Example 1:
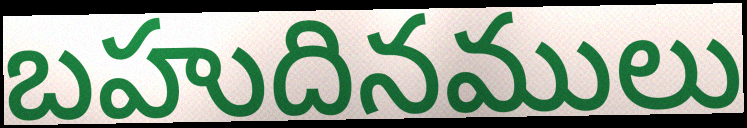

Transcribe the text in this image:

బహుదినములు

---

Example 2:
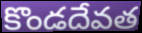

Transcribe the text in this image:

కొండదేవత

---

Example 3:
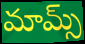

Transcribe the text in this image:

మామ్స్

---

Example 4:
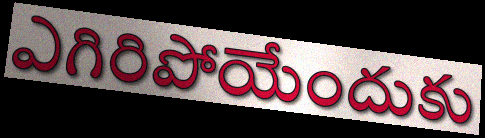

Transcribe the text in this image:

ఎగిరిపోయేందుకు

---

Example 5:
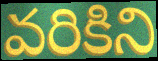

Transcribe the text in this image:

వరికిని